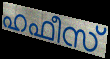
ഹഫീസ്